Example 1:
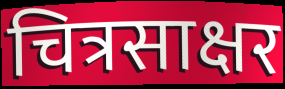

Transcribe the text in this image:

चित्रसाक्षर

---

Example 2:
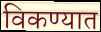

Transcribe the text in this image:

विकण्यात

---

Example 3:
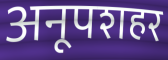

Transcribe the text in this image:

अनूपशहर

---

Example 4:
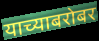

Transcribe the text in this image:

याच्याबरोबर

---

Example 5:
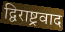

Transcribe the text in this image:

द्विराष्ट्रवाद